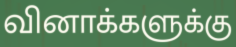
வினாக்களுக்கு